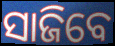
ସାଜିବେ